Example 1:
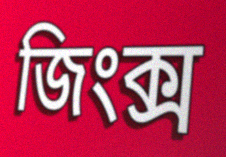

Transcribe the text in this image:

জিংক্স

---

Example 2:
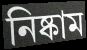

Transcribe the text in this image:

নিষ্কাম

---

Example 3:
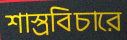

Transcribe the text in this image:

শাস্ত্রবিচারে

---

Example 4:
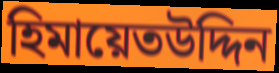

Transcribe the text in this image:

হিমায়েতউদ্দিন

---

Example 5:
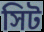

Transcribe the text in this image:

সিট